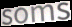
soms